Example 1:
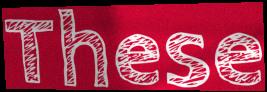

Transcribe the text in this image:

These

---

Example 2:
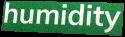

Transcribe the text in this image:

humidity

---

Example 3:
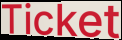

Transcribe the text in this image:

Ticket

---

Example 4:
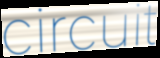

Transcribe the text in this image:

circuit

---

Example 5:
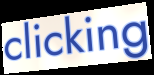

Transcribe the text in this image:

clicking